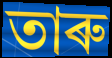
তাৰু